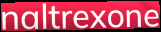
naltrexone